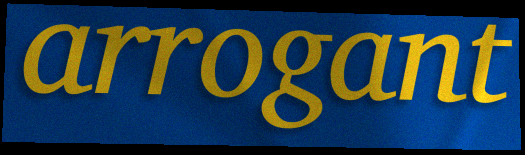
arrogant